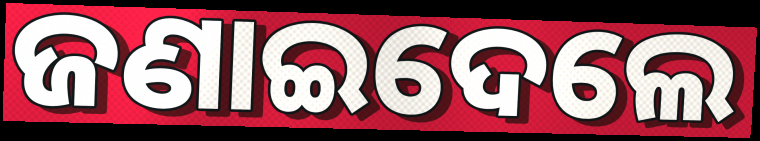
ଜଣାଇଦେଲେ